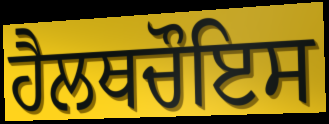
ਹੈਲਥਚੌਇਸ